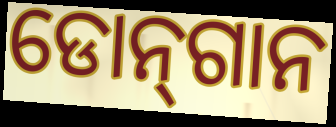
ଡୋନ୍‌ଗାନ